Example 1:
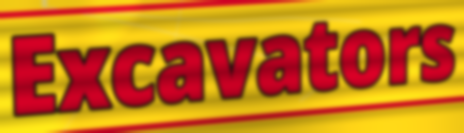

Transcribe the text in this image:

Excavators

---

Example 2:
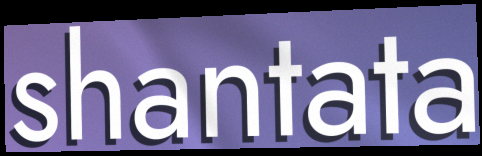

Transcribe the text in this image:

shantata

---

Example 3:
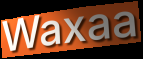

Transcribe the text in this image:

Waxaa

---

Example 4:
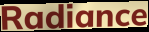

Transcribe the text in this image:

Radiance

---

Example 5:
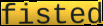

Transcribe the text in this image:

fisted